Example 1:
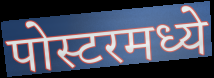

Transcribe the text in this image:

पोस्टरमध्ये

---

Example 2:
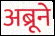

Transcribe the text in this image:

अब्रूने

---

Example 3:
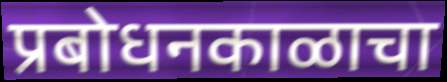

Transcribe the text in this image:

प्रबोधनकाळाचा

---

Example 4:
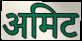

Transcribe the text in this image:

अमिट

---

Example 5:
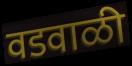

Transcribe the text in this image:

वडवाळी